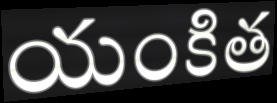
యంకిత